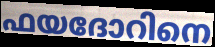
ഫയദോറിനെ